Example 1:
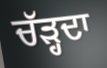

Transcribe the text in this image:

ਚੱੜ੍ਹਦਾ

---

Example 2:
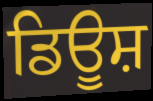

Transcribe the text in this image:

ਡਿਊਸ਼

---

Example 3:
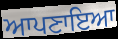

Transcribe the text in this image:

ਆਪਣਾਇਆ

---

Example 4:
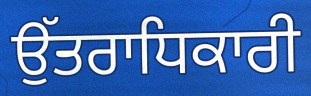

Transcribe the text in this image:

ਉੱਤਰਾਧਿਕਾਰੀ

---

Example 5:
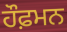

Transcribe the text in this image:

ਹੌਫ਼ਮਨ